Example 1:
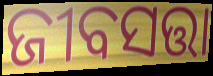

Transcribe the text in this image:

ଜୀବସତ୍ତା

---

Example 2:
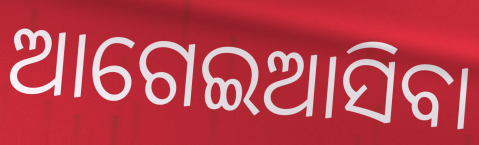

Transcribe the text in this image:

ଆଗେଇଆସିବା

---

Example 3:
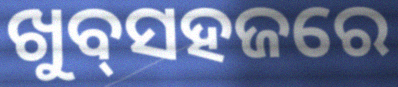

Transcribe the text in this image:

ଖୁବ୍‌ସହଜରେ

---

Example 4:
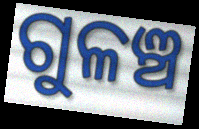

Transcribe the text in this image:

ଗୁଳଞ୍ଚ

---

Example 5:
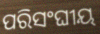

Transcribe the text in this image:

ପରିସଂଘୀୟ